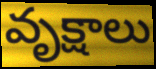
వృక్షాలు